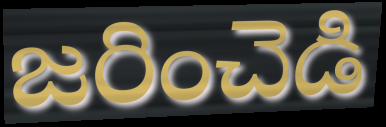
జరించెడి